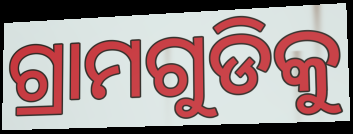
ଗ୍ରାମଗୁଡିକୁ